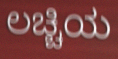
ಲಚ್ಚಿಯ